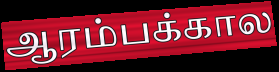
ஆரம்பக்கால